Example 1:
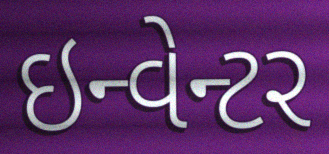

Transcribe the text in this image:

ઇન્વેન્ટર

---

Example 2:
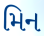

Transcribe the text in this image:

મિન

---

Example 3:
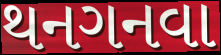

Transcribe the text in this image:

થનગનવા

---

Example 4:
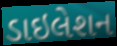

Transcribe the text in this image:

ડાઇલેશન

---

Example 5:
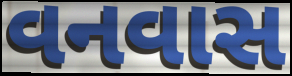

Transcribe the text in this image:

વનવાસ